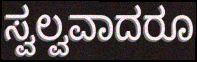
ಸ್ವಲ್ವವಾದರೂ